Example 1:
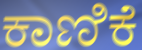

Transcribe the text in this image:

ಕಾಣಿಕೆ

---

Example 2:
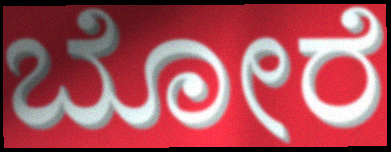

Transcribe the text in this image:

ಬೋರೆ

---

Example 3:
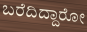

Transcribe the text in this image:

ಬರೆದಿದ್ದಾರೋ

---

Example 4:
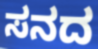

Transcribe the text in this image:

ಸನದ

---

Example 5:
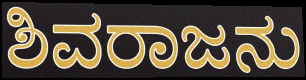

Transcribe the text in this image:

ಶಿವರಾಜನು